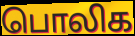
பொலிக